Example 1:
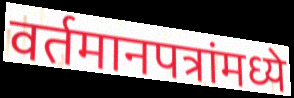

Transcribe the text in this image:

वर्तमानपत्रांमध्ये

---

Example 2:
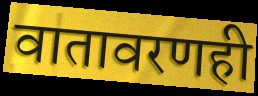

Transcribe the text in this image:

वातावरणही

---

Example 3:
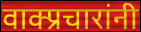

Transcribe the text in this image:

वाक्प्रचारांनी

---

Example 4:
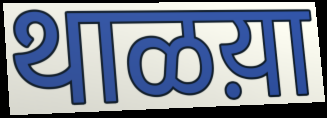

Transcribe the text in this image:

थाळय़ा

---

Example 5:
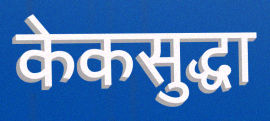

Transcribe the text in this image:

केकसुद्धा